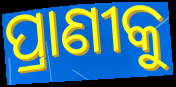
ପ୍ରାଣୀକୁ